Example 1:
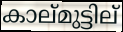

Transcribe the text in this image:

കാല്മുട്ടില്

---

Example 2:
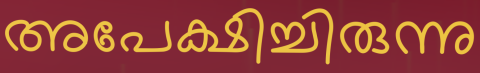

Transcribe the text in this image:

അപേക്ഷിച്ചിരുന്നു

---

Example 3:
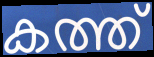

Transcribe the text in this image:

കത്ത്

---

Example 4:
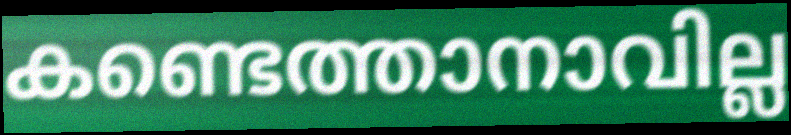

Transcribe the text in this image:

കണ്ടെത്താനാവില്ല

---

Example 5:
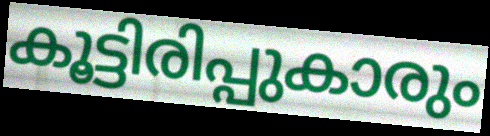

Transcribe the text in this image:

കൂട്ടിരിപ്പുകാരും